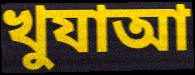
খুযাআ